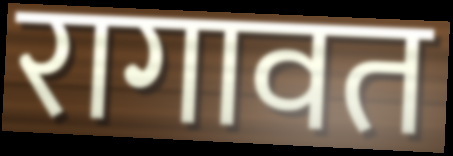
रागावत